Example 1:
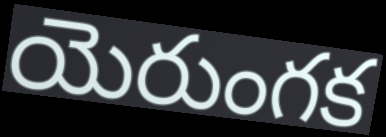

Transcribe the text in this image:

యెరుంగక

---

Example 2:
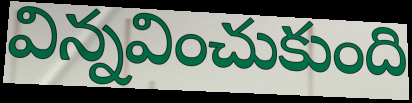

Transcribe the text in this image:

విన్నవించుకుంది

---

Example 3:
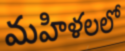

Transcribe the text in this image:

మహిళలలో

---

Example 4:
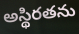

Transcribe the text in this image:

అస్థిరతను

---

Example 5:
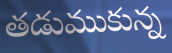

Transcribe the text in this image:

తడుముకున్న